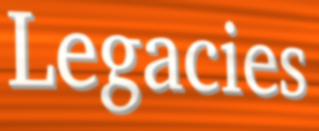
Legacies